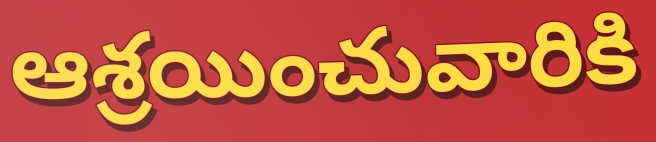
ఆశ్రయించువారికి